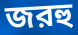
জরহু